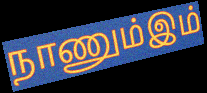
நாணும்இம்